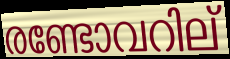
രണ്ടോവറില്